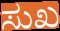
ಸುಖ